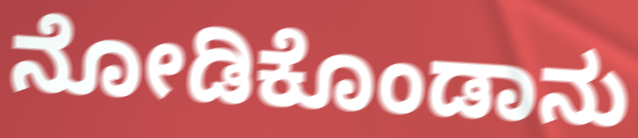
ನೋಡಿಕೊಂಡಾನು